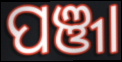
ପଞ୍ଜା